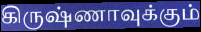
கிருஷ்ணாவுக்கும்